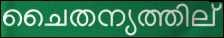
ചൈതന്യത്തില്